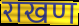
राखण